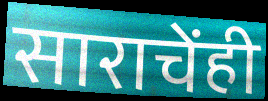
साराचेंही